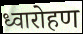
ध्वारोहण